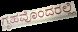
ಗೃಹವೊಂದರಲ್ಲಿ